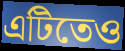
এটিতেও